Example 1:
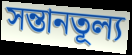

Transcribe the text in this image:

সন্তানতূল্য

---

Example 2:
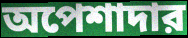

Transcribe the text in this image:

অপেশাদার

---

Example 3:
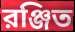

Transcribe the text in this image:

রঞ্জিত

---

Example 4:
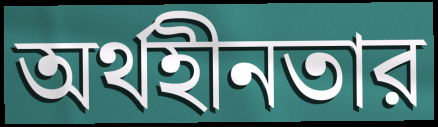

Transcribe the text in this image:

অর্থহীনতার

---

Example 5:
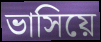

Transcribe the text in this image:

ভাসিয়ে